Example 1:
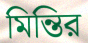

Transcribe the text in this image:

মিন্তির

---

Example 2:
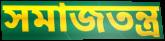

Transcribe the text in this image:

সমাজতন্ত্র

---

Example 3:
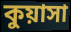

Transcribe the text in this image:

কুয়াসা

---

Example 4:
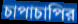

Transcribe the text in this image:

চাপাচাপির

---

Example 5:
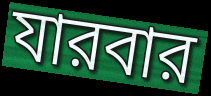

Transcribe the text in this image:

যারবার